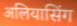
अलियासिंग